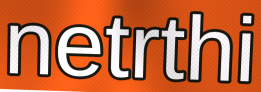
netrthi